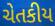
ચેતકીય